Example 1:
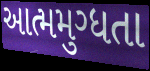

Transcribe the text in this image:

આત્મમુગ્ધતા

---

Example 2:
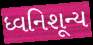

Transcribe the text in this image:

ધ્વનિશૂન્ય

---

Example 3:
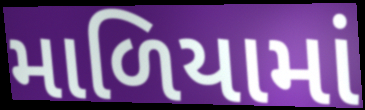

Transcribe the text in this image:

માળિયામાં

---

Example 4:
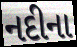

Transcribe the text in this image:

નદીના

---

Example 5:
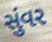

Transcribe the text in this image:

સુંવર